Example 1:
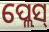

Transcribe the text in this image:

ପ୍ଲେସ୍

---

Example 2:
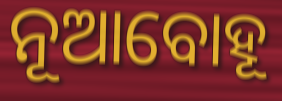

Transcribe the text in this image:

ନୂଆବୋହୂ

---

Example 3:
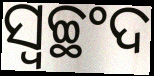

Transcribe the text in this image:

ସ୍ୱଚ୍ଛଂଦ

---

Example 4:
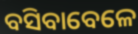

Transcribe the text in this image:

ବସିବାବେଳେ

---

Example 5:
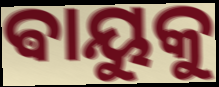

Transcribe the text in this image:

ଵାୟୁକୁ